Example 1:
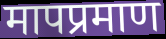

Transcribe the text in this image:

मापप्रमाण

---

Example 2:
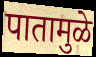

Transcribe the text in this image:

पातामुळे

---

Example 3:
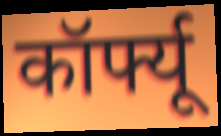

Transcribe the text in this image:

कॉर्फ्यू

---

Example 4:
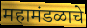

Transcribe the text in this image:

महामंडळाचे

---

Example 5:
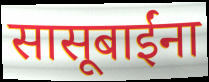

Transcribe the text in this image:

सासूबाईंना